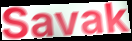
Savak